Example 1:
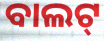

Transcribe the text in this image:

ବାଲଟ୍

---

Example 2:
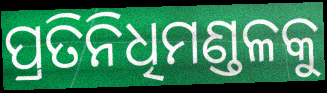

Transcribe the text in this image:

ପ୍ରତିନିଧିମଣ୍ଡଳକୁ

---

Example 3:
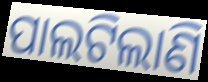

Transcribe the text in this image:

ପାଲଟିଲାଣି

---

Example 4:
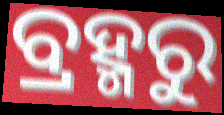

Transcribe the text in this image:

ବ୍ରହ୍ମରୁ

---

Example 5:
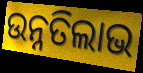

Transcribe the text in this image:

ଉନ୍ନତିଲାଭ